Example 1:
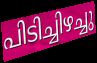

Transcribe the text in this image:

പിടിച്ചിഴച്ചു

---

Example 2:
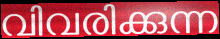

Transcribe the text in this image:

വിവരിക്കുന്ന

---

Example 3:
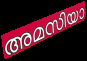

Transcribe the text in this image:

അമസിയാ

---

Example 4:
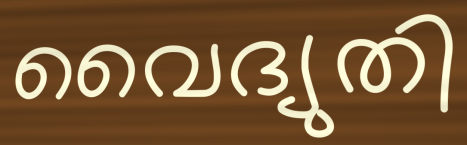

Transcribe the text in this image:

വൈദ്യുതി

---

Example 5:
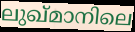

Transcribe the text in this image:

ലുഖ്മാനിലെ